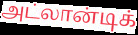
அட்லான்டிக்